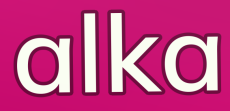
alka